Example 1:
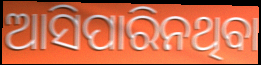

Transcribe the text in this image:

ଆସିପାରିନଥିବା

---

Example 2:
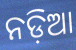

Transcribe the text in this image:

ନଡ଼ିଆ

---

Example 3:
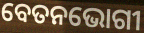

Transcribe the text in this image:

ବେତନଭୋଗୀ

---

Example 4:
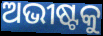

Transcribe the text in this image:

ଅଭୀଷ୍ଟକୁ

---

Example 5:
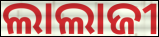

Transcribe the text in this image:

ଲାଲାଜୀ